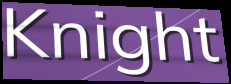
Knight